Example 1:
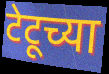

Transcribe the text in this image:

टेटूच्या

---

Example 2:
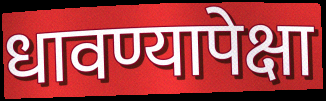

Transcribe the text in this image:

धावण्यापेक्षा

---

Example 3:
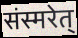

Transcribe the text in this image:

संस्मरेत्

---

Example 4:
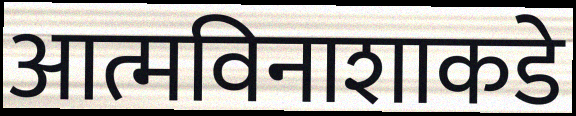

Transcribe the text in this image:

आत्मविनाशाकडे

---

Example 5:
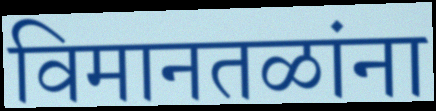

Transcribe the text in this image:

विमानतळांना